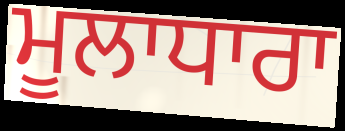
ਮੂਲਾਧਾਰਾ